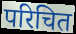
परिचित